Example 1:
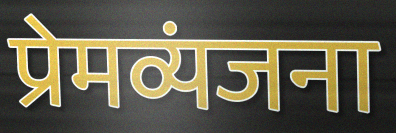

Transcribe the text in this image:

प्रेमव्यंजना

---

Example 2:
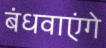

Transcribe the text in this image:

बंधवाएंगे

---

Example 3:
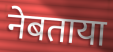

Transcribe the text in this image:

नेबताया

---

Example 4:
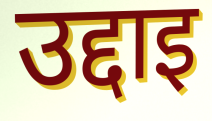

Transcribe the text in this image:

उद्दाइ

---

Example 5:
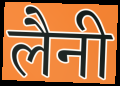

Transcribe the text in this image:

लैनी